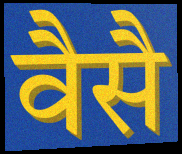
वैसै